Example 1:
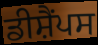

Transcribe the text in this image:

ਡੀਸ਼ੈਂਪਸ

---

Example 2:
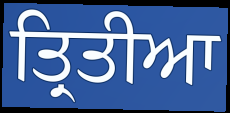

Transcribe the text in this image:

ਤ੍ਰਿਤੀਆ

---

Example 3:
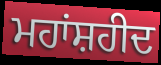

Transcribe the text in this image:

ਮਹਾਂਸ਼ਹੀਦ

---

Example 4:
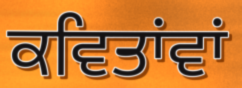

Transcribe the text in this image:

ਕਵਿਤਾਂਵਾਂ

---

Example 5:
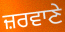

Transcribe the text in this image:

ਜ਼ਰਵਾਣੇ